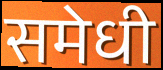
समेधी